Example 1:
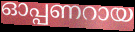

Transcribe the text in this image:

ഓപ്പണറായ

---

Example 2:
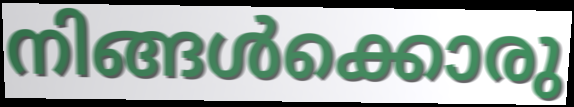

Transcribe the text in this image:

നിങ്ങൾക്കൊരു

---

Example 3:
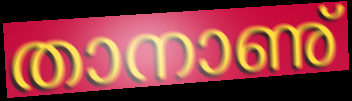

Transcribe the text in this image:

താനാണു്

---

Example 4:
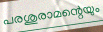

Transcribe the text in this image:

പരശുരാമന്റെയും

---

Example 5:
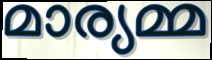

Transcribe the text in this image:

മാര്യമ്മ